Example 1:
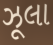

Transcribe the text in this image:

ઝૂલા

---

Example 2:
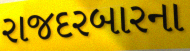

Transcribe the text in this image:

રાજદરબારના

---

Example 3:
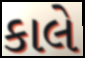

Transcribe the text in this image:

કાલે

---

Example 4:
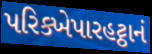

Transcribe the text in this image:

પરિક્ખેપારહટ્ઠાનં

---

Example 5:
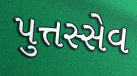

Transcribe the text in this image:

પુત્તસ્સેવ